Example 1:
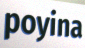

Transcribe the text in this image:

poyina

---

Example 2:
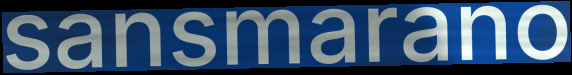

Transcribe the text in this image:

sansmarano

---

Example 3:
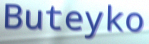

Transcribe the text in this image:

Buteyko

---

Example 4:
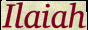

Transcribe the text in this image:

Ilaiah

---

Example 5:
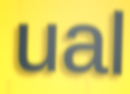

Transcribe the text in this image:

ual